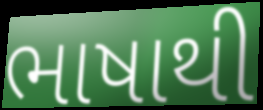
ભાષાથી